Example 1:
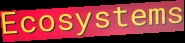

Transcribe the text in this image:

Ecosystems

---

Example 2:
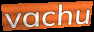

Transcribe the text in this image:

vachu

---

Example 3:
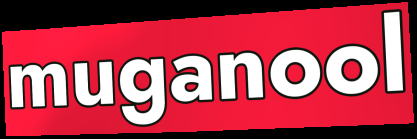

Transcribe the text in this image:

muganool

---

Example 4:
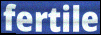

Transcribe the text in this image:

fertile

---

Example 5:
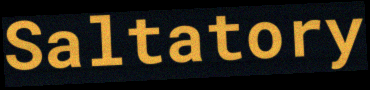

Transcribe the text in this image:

Saltatory